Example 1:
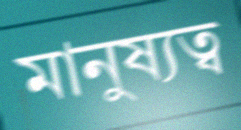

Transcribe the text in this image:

মানুষ্যত্ব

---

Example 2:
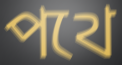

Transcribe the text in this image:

পথে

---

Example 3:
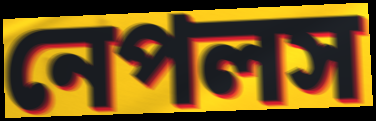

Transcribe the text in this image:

নেপলস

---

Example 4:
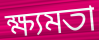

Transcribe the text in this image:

ক্ষ্যমতা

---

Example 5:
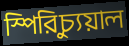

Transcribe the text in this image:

স্পিরিচ্যুয়াল